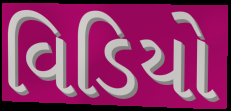
વિડિયો